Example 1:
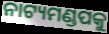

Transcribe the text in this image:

ନାଟ୍ୟମଣ୍ଡପକୁ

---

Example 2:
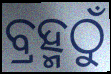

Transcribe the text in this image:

ବ୍ରହ୍ମଠୁଁ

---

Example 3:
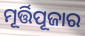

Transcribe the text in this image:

ମୂର୍ତ୍ତିପୂଜାର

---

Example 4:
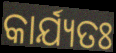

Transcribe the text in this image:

କାର୍ଯ୍ୟତଃ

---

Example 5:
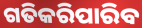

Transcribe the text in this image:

ଗତିକରିପାରିବ